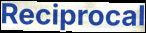
Reciprocal